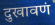
दुखावणं